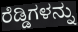
ರೆಡ್ಡಿಗಳನ್ನು